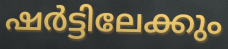
ഷർട്ടിലേക്കും